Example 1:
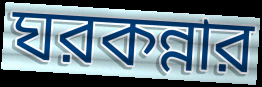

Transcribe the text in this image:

ঘরকন্নার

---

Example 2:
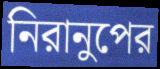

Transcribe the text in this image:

নিরানুপের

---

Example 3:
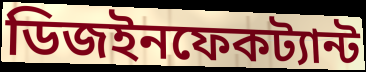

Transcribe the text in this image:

ডিজইনফেকট্যান্ট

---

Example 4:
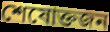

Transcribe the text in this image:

শেষোক্তজন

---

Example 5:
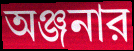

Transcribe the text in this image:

অঞ্জনার